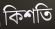
কিশতি